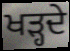
ਖੜ੍ਹਦੇ